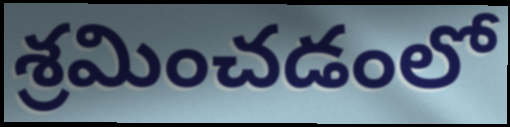
శ్రమించడంలో